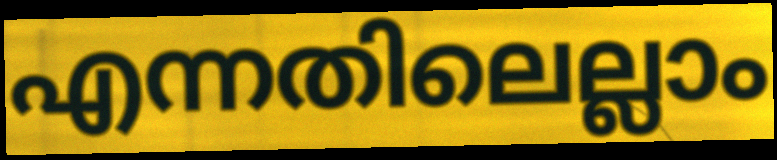
എന്നതിലെല്ലാം